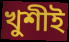
খুশীই